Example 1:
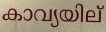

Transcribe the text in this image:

കാവ്യയില്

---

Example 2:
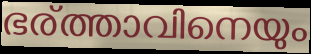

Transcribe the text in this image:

ഭര്ത്താവിനെയും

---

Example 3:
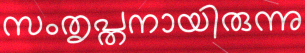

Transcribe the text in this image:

സംതൃപ്തനായിരുന്നു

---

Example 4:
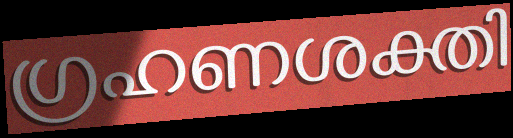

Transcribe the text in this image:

ഗ്രഹണശക്തി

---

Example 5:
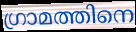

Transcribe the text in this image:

ഗ്രാമത്തിനെ